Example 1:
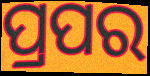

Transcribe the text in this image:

ପ୍ରପର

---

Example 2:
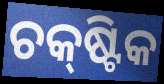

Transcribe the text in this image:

ଚକ୍‌ଷ୍ଟିକ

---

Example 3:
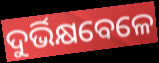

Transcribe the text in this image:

ଦୁର୍ଭିକ୍ଷବେଳେ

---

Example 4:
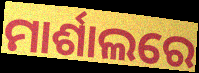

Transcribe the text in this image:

ମାର୍ଶାଲରେ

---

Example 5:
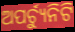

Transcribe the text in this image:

ଅପର୍ଚ୍ୟୁନିଟି